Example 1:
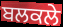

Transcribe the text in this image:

ਬਲਕਲੇ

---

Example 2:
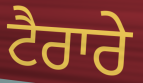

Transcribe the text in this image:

ਟੈਰਾਰੇ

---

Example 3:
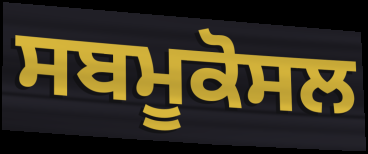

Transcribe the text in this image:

ਸਬਮੂਕੋਸਲ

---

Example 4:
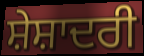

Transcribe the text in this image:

ਸ਼ੇਸ਼ਾਦਰੀ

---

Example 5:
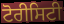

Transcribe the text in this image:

ਟੋਰੀਸਿਟੀ